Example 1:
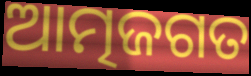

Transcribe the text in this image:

ଆତ୍ମଜଗତ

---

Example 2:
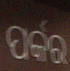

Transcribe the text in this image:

ପର୍କର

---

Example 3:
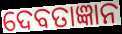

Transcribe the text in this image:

ଦେବତାଜ୍ଞାନ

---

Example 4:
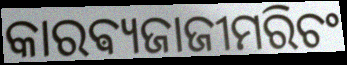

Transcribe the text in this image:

କାରଵ୍ଯଜାଜୀମରିଚଂ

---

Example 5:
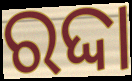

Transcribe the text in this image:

ରଦ୍ଦା